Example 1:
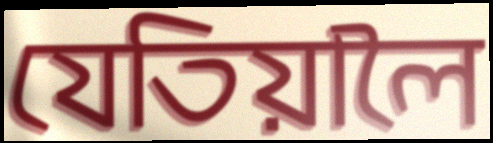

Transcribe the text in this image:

যেতিয়ালৈ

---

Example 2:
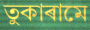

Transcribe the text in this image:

তুকাৰামে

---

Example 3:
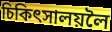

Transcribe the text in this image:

চিকিৎসালয়লৈ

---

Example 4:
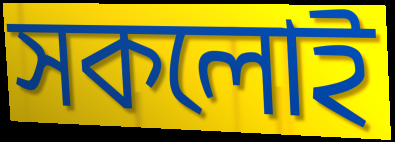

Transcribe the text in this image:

সকলোই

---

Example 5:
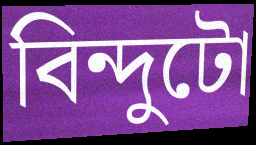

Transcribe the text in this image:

বিন্দুটো